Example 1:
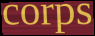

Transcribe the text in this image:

corps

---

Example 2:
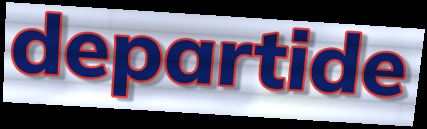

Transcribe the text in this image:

departide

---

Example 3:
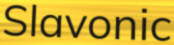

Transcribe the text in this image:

Slavonic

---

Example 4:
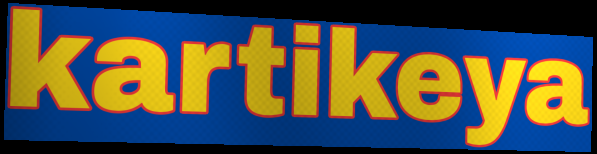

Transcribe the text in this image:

kartikeya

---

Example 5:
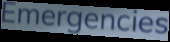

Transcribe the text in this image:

Emergencies